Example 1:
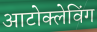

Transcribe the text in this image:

आटोक्लेविंग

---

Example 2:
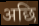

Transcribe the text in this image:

अछि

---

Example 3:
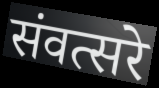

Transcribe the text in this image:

संवत्सरे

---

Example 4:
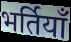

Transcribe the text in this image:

भर्तियाँ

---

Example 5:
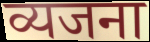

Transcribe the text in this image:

व्यजना